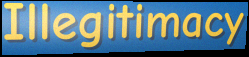
Illegitimacy